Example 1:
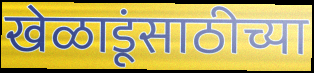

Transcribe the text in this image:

खेळाडूंसाठीच्या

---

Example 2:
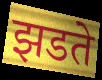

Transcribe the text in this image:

झडते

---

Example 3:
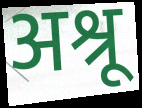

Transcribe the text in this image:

अश्रू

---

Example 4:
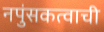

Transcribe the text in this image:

नपुंसकत्वाची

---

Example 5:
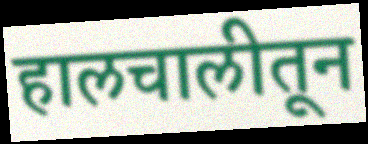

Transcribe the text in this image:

हालचालीतून